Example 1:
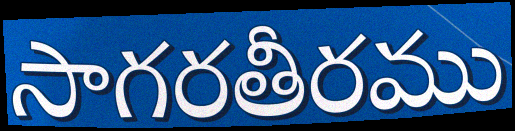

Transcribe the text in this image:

సాగరతీరము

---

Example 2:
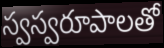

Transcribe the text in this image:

స్వస్వరూపాలతో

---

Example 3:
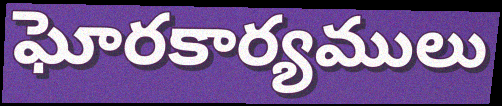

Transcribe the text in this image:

ఘోరకార్యములు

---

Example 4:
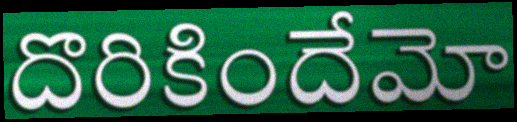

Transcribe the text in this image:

దొరికిందేమో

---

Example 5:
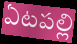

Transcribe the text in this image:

ఏటపల్లి